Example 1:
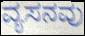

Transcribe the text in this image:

ವ್ಯಸನವು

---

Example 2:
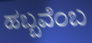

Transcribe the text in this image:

ಹಬ್ಬವೆಂಬ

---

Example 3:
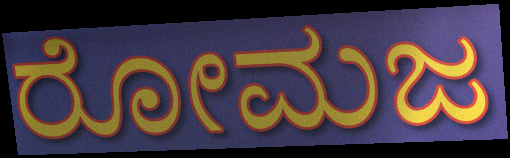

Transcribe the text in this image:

ರೋಮಜ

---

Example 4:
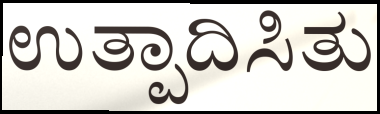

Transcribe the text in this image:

ಉತ್ಪಾದಿಸಿತು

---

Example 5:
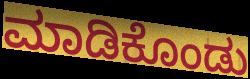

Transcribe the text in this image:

ಮಾಡಿಕೊಂಡು